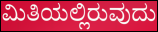
ಮಿತಿಯಲ್ಲಿರುವುದು